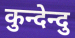
कुन्देन्दु